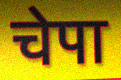
चेपा